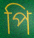
পি